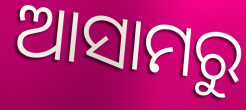
ଆସାମରୁ